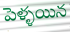
పెళ్ళయిన